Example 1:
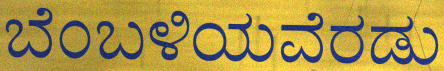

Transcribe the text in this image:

ಬೆಂಬಳಿಯವೆರಡು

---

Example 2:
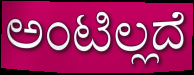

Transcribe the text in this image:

ಅಂಟಿಲ್ಲದೆ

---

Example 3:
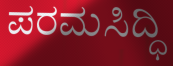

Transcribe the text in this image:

ಪರಮಸಿದ್ಧಿ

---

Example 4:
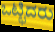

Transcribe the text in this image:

ಒಟ್ಟಿದರು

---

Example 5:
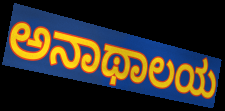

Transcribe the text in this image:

ಅನಾಥಾಲಯ